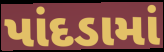
પાંદડામાં